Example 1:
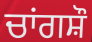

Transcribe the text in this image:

ਚਾਂਗਸ਼ੌ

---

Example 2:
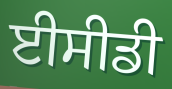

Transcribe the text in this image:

ਈਸੀਡੀ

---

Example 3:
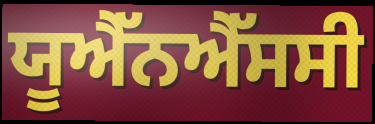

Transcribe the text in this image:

ਯੂਐੱਨਐੱਸਸੀ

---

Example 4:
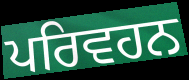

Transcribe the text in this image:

ਪਰਿਵਹਨ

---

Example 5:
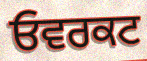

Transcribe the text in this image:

ਓਵਰਕਟ